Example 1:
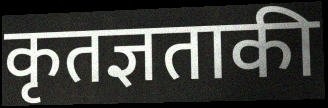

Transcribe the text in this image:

कृतज्ञताकी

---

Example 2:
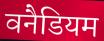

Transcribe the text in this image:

वनैडियम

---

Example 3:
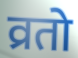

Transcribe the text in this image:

व्रतो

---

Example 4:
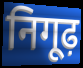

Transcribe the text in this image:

निगूढ़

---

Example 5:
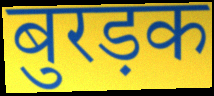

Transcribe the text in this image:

बुरड़क